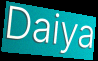
Daiya